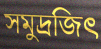
সমুদ্রজিৎ